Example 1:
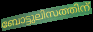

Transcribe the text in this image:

ബോട്ടുലിസത്തിന്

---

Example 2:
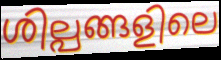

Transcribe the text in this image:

ശില്പങ്ങളിലെ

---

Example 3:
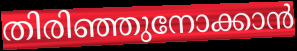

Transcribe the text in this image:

തിരിഞ്ഞുനോക്കാൻ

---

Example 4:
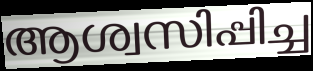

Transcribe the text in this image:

ആശ്വസിപ്പിച്ച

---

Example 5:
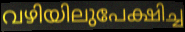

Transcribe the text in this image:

വഴിയിലുപേക്ഷിച്ച